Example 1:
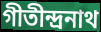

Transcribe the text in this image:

গীতীন্দ্রনাথ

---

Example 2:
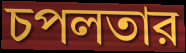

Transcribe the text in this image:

চপলতার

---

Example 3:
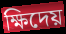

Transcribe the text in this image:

ক্ষিদেয়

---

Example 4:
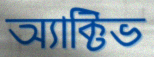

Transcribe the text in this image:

অ্যাক্টিভ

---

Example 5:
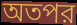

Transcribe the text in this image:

অতপর